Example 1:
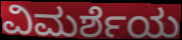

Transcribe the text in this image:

ವಿಮರ್ಶೆಯ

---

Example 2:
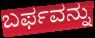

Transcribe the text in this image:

ಬರ್ಫವನ್ನು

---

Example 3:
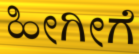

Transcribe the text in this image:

ಹೀಗೀಗೆ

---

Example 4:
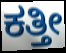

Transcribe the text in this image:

ಕತ್ತೀ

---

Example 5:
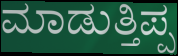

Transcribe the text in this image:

ಮಾಡುತ್ತಿಪ್ಪ